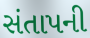
સંતાપની